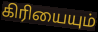
கிரியையும்